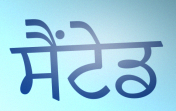
ਸੈਂਟੇਡ